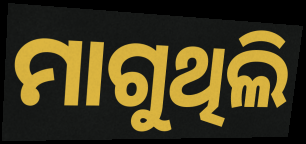
ମାଗୁଥିଲି